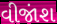
વીજાંશ